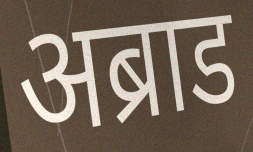
अब्राड